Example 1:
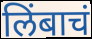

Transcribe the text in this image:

लिंबाचं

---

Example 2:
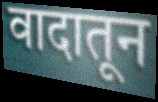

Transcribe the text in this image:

वादातून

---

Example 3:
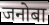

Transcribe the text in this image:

जनोबा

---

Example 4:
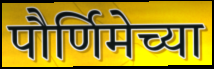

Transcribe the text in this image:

पौर्णिमेच्या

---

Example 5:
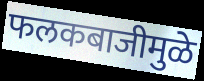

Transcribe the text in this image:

फलकबाजीमुळे